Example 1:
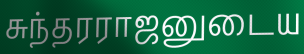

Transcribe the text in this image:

சுந்தரராஜனுடைய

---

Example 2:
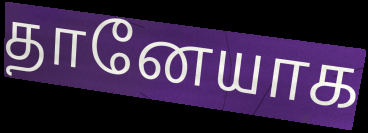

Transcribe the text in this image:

தானேயாக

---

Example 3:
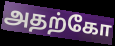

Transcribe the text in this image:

அதற்கோ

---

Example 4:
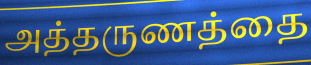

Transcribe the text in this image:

அத்தருணத்தை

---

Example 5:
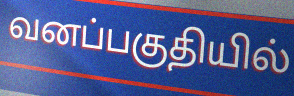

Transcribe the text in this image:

வனப்பகுதியில்